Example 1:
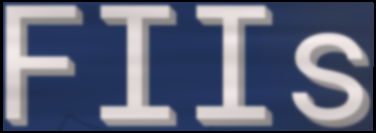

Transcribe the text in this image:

FIIs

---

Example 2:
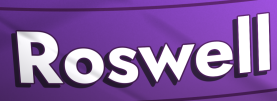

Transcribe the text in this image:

Roswell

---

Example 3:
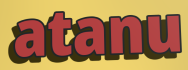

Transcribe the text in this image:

atanu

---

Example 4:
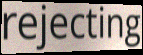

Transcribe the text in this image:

rejecting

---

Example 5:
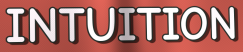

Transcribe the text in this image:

INTUITION